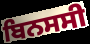
ਬਿਨਸਸੀ